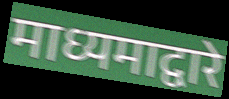
माध्यमाद्वारे